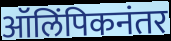
ऑलिंपिकनंतर